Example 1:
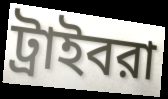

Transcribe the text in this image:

ট্রাইবরা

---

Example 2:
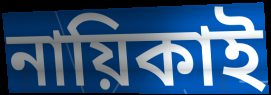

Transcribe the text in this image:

নায়িকাই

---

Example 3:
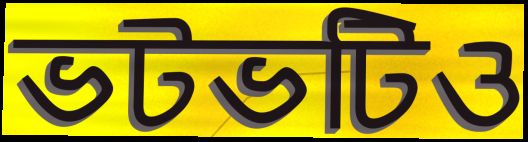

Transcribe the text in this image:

ভটভটিও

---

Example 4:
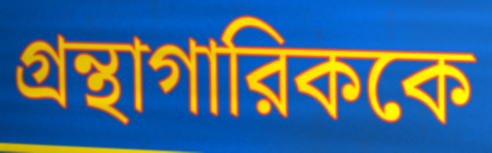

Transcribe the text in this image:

গ্রন্থাগারিককে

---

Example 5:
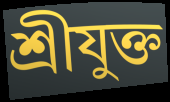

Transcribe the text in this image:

শ্রীযুক্ত